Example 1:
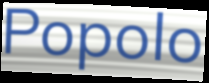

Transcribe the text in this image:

Popolo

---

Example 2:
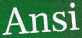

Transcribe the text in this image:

Ansi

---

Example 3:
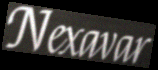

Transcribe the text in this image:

Nexavar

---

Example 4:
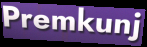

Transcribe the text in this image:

Premkunj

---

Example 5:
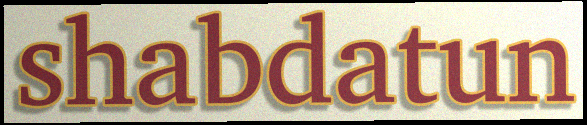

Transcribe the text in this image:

shabdatun